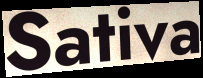
Sativa